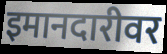
इमानदारीवर